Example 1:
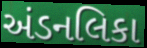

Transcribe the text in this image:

અંડનલિકા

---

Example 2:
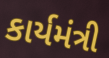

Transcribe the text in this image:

કાર્યમંત્રી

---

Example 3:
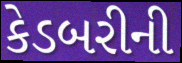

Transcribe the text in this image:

કેડબરીની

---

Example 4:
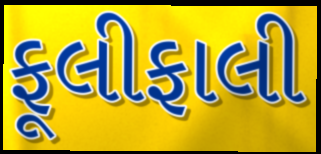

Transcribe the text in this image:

ફૂલીફાલી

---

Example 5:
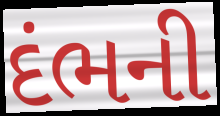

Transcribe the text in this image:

દંભની